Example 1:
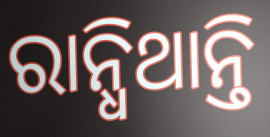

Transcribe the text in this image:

ରାନ୍ଧିଥାନ୍ତି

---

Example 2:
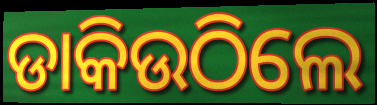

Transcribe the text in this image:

ଡାକିଉଠିଲେ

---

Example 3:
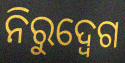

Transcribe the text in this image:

ନିରୁଦ୍ବେଗ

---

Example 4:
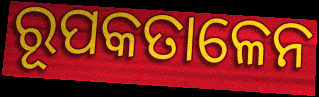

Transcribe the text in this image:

ରୂପକତାଳେନ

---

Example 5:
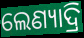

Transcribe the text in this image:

ଲେଣ୍ୟାଦ୍ରି